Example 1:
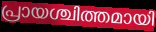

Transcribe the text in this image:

പ്രായശ്ചിത്തമായി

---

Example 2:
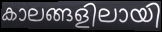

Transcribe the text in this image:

കാലങ്ങളിലായി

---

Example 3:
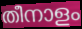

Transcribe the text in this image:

തീനാളം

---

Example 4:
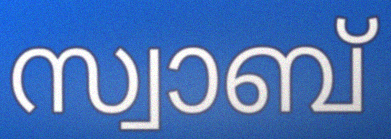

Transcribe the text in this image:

സ്വാബ്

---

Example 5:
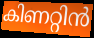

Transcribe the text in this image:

കിണറ്റിൻ